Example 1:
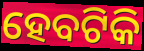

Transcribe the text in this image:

ହେବଟିକି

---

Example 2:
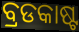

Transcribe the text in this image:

ବ୍ରଡକାଷ୍ଟ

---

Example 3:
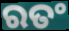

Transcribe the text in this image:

ରତଂ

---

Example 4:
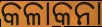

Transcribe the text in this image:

କଳାକନା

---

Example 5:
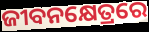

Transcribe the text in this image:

ଜୀବନକ୍ଷେତ୍ରରେ